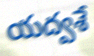
యద్వశే